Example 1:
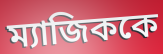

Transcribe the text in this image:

ম্যাজিককে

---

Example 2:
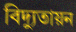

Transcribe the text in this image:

বিদ্যুতায়ন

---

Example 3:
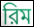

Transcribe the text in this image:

রিম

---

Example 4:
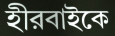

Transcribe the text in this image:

হীরবাইকে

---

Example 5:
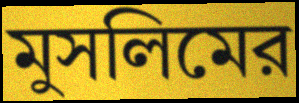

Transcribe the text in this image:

মুসলিমের